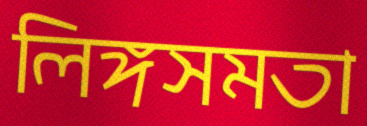
লিঙ্গসমতা